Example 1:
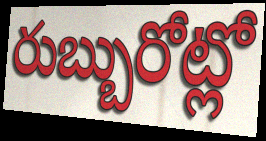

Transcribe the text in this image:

రుబ్బురోట్లో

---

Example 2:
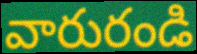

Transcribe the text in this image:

వారురండి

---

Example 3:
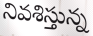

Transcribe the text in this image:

నివశిస్తున్న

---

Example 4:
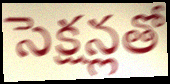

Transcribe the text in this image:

సెక్షన్లతో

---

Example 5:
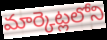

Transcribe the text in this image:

మార్కెట్లలోని